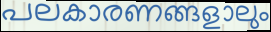
പലകാരണങ്ങളാലും